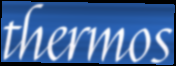
thermos